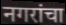
नगरांचा